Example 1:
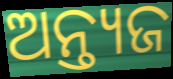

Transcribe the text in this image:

ଅନ୍ତ୍ୟଜ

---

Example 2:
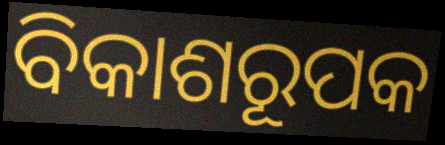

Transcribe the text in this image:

ବିକାଶରୂପକ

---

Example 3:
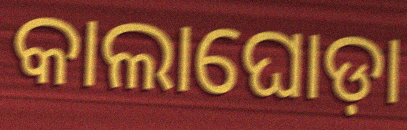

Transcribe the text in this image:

କାଲାଘୋଡ଼ା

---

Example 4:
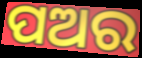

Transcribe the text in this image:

ପଅର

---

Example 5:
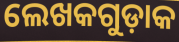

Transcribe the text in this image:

ଲେଖକଗୁଡ଼ାକ